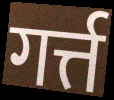
गर्त्त